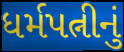
ધર્મપત્નીનું